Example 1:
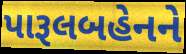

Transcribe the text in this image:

પારૂલબહેનને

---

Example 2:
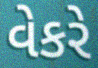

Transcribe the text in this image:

વેકરે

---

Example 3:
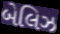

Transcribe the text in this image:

બેલિઝ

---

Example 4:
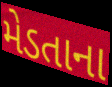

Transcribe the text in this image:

મેડતાના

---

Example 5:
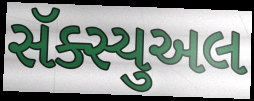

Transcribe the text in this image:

સૅક્સ્યુઅલ